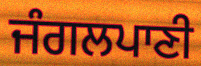
ਜੰਗਲਪਾਣੀ